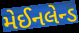
મેઈનલેન્ડ